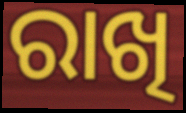
ରାଖି